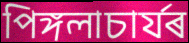
পিঙ্গলাচাৰ্যৰ